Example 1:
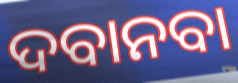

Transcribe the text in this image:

ଦବାନବା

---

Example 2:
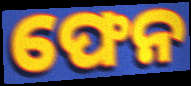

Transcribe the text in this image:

ଫେନ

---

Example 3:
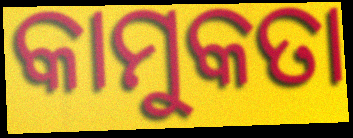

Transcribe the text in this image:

କାମୁକତା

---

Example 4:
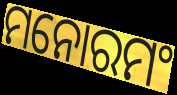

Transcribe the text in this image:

ମନୋରମଂ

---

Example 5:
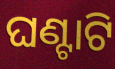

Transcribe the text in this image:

ଘଣ୍ଟାଟି